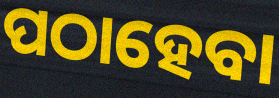
ପଠାହେବା